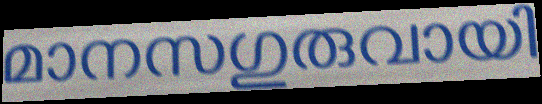
മാനസഗുരുവായി